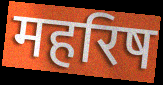
महरिष